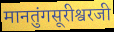
मानतुंगसूरीश्वरजी